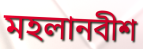
মহলানবীশ